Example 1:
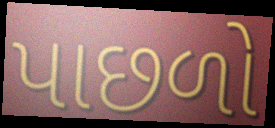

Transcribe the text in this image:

પાછળો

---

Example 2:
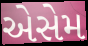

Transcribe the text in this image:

એસેમ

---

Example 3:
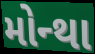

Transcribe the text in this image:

મોન્થા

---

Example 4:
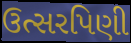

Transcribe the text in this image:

ઉત્સરપિણી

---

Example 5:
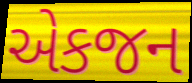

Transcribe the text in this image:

એકજન